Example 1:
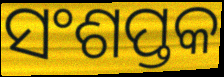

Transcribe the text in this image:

ସଂଶପ୍ତକ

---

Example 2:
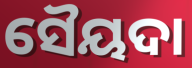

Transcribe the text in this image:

ସୈୟଦା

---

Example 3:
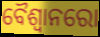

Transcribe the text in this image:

ବୈଶ୍ୱାନରୋ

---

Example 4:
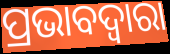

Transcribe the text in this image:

ପ୍ରଭାବଦ୍ୱାରା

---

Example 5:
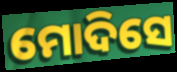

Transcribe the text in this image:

ମୋଦିସେ